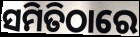
ସମିତିଠାରେ